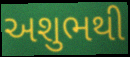
અશુભથી